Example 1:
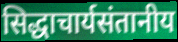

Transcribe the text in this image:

सिद्धाचार्यसंतानीय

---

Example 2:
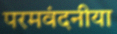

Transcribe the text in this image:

परमवंदनीया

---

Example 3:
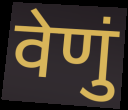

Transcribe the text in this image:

वेणुं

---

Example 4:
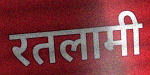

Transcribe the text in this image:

रतलामी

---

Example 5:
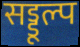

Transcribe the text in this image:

सड्डूल्प